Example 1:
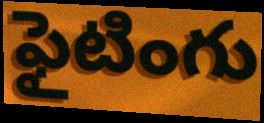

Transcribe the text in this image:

ఫైటింగు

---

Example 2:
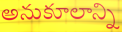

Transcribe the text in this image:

అనుకూలాన్ని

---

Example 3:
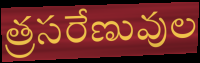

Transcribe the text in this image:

త్రసరేణువుల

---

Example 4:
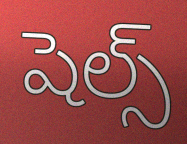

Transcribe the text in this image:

షెల్స్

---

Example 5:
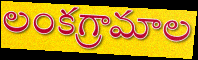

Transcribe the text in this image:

లంకగ్రామాల